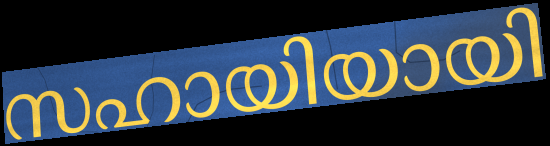
സഹായിയായി